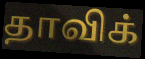
தாவிக்